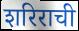
शरिराची